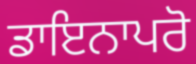
ਡਾਇਨਾਪਰੋ